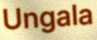
Ungala